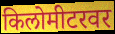
किलोमीटरवर